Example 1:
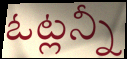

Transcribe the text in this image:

ఓట్లన్నీ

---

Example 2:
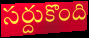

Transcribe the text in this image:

సర్దుకొంది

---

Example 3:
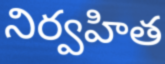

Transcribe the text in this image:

నిర్వహిత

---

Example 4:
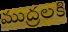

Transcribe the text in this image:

ముద్రలకి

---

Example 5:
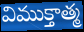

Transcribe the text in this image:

విముక్తాత్మ